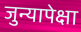
जुन्यापेक्षा